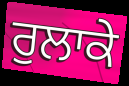
ਰੁਲਾਕੇ